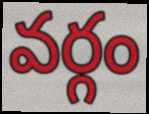
వర్గం